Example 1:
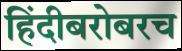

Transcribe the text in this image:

हिंदीबरोबरच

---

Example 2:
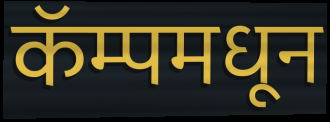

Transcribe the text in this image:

कॅम्पमधून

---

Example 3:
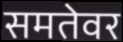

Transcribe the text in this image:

समतेवर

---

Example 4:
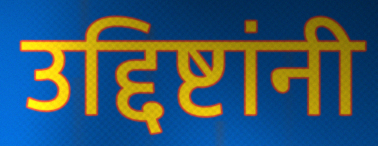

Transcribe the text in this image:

उद्दिष्टांनी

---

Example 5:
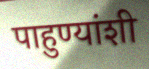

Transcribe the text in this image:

पाहुण्यांशी